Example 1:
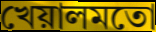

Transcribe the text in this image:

খেয়ালমতো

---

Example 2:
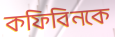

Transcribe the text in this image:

কফিবিনকে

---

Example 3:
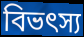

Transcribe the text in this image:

বিভৎস্য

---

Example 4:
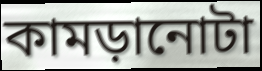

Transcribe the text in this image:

কামড়ানোটা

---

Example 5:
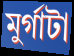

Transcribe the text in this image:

মুর্গাটা